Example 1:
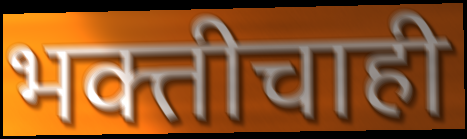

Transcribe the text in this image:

भक्तीचाही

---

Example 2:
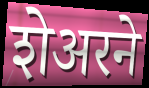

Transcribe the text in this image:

शेअरने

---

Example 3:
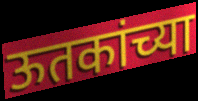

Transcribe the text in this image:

ऊतकांच्या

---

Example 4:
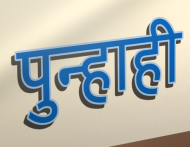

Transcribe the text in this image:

पुन्हाही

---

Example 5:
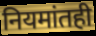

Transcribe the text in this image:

नियमांतही